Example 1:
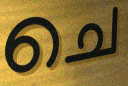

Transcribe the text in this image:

ചെ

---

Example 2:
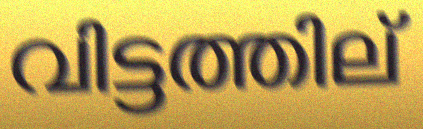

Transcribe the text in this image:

വിട്ടത്തില്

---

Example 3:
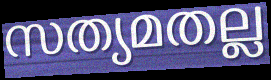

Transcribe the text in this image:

സത്യമതല്ല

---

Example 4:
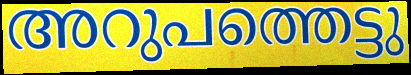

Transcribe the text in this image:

അറുപത്തെട്ടു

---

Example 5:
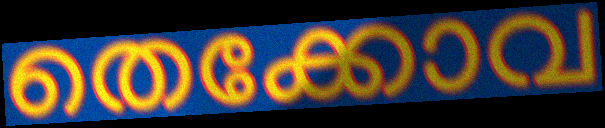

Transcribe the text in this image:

തെക്കോവ